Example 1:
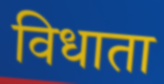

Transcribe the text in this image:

विधाता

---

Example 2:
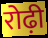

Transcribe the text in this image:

रोढ़ी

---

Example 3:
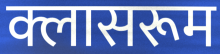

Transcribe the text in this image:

क्‍लासरूम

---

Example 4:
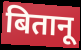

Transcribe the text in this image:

बितानू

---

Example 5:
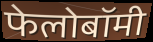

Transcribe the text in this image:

फेलोबॉमी